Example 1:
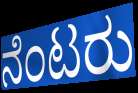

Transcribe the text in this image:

ನೆಂಟರು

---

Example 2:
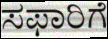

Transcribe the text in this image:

ಸಫಾರಿಗೆ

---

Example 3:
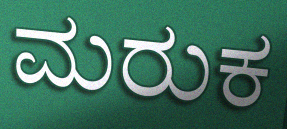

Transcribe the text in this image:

ಮರುಕ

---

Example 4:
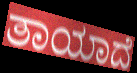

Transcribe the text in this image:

ತಾಯಾದೆ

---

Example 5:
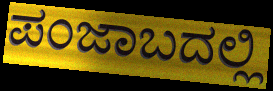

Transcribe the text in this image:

ಪಂಜಾಬದಲ್ಲಿ